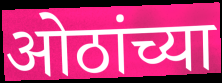
ओठांच्या